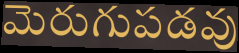
మెరుగుపడవు